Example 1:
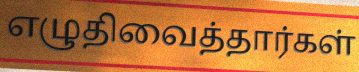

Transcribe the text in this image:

எழுதிவைத்தார்கள்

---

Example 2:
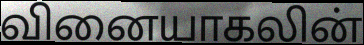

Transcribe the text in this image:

வினையாகலின்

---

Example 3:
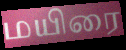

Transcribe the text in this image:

மயிரை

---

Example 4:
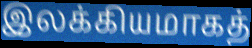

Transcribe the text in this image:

இலக்கியமாகத்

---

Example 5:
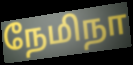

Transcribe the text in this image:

நேமிநா